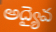
అద్యైవ